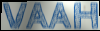
VAAH